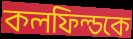
কলফিল্ডকে